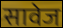
सावेज